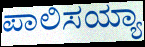
ಪಾಲಿಸಯ್ಯಾ